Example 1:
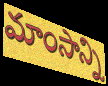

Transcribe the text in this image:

మాంసాన్ని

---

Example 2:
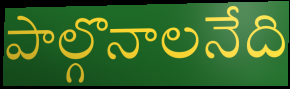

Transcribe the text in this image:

పాల్గొనాలనేది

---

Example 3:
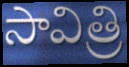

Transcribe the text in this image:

సావిత్రి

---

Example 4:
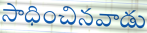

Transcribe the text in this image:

సాధించినవాడు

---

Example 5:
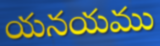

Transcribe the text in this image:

యనయము